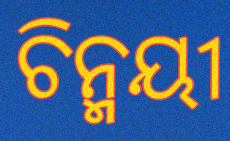
ଚିନ୍ମୟୀ